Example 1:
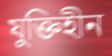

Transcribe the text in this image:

যুক্তিহীন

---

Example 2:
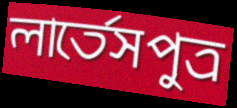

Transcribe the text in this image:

লার্তেসপুত্র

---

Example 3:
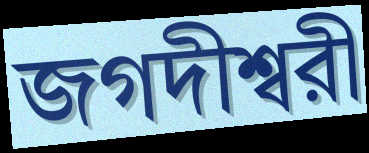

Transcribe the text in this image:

জগদীশ্বরী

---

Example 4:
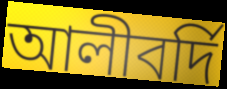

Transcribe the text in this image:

আলীবর্দি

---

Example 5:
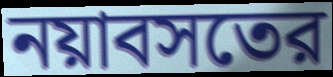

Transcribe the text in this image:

নয়াবসতের